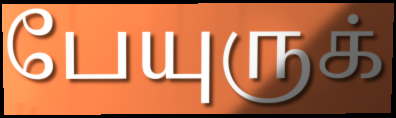
பேயுருக்